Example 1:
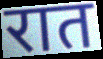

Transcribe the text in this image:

रात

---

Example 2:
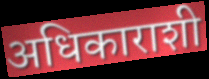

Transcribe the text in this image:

अधिकाराशी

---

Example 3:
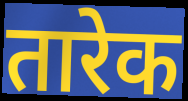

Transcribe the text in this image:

तारेक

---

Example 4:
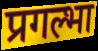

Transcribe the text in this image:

प्रगल्भा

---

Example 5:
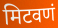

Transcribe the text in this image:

मिटवणं